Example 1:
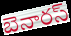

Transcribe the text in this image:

బెనారస్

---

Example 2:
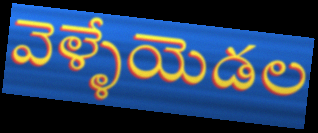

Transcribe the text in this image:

వెళ్ళేయెడల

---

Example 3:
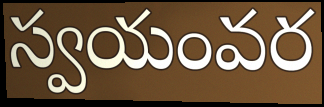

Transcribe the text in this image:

స్వయంవర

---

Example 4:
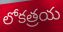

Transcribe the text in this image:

లోకత్రయ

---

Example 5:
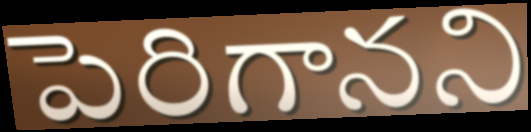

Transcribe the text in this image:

పెరిగానని